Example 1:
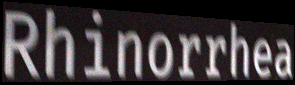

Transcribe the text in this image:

Rhinorrhea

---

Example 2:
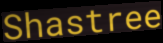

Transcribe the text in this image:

Shastree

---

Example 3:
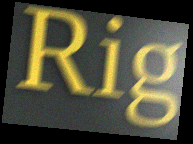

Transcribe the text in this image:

Rig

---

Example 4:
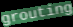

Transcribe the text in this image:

grouting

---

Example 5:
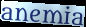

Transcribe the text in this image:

anemia